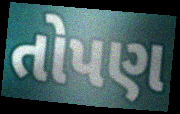
તોપણ